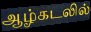
ஆழ்கடலில்